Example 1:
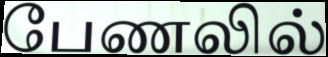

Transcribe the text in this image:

பேணலில்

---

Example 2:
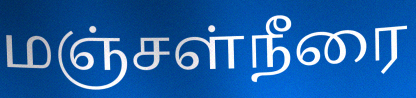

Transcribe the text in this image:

மஞ்சள்நீரை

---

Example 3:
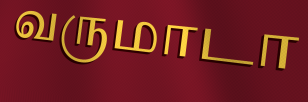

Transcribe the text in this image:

வருமாடா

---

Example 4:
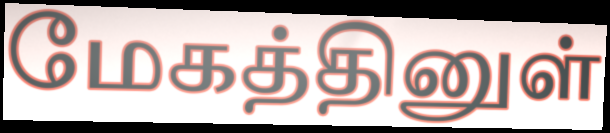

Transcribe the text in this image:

மேகத்தினுள்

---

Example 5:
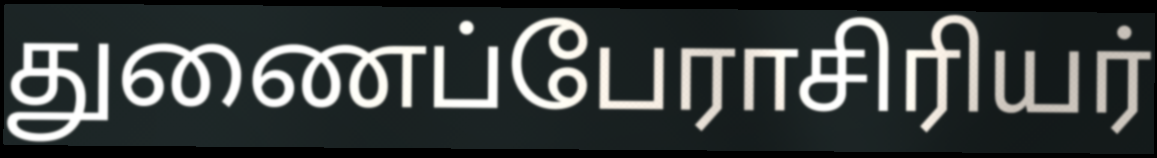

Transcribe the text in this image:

துணைப்பேராசிரியர்